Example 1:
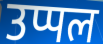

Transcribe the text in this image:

उप्पल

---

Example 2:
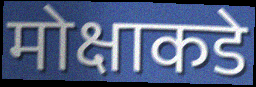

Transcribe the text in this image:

मोक्षाकडे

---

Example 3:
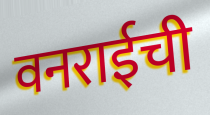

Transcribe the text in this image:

वनराईची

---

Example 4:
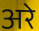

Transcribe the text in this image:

अरे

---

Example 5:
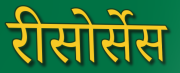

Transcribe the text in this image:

रीसोर्सेस